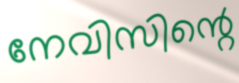
നേവിസിന്റെ